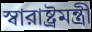
স্বারাষ্ট্রমন্ত্রী